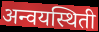
अन्वयस्थिती